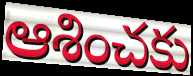
ఆశించకు